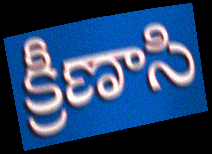
క్రీణాసి